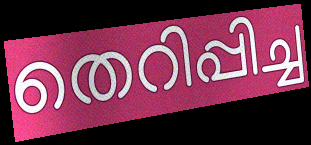
തെറിപ്പിച്ച